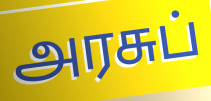
அரசுப்